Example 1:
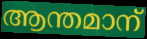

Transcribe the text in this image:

ആന്തമാന്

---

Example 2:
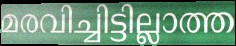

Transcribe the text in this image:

മരവിച്ചിട്ടില്ലാത്ത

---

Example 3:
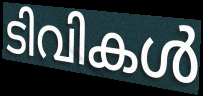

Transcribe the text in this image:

ടിവികൾ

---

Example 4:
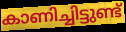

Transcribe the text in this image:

കാണിച്ചിട്ടുണ്ട്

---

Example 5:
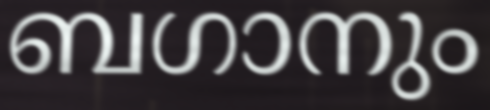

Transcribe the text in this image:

ബഗാനും